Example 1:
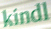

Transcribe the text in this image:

kindl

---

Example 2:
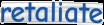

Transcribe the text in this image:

retaliate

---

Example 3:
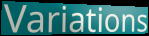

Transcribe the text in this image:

Variations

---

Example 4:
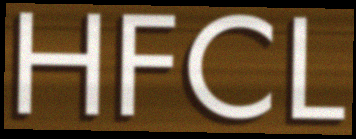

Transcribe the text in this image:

HFCL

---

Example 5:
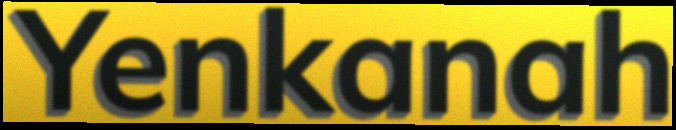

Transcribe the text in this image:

Yenkanah